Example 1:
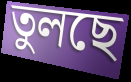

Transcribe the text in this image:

তুলছে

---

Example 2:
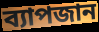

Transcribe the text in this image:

ব্যাপজান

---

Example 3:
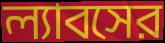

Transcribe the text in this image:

ল্যাবসের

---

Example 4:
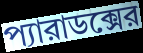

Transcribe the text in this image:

প্যারাডক্সের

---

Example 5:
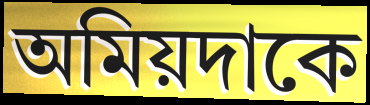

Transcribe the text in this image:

অমিয়দাকে